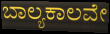
ಬಾಲ್ಯಕಾಲವೇ